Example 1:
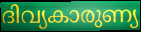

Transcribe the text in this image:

ദിവ്യകാരുണ്യ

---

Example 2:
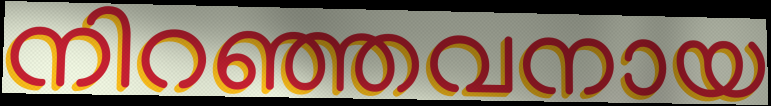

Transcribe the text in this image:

നിറഞ്ഞവനായ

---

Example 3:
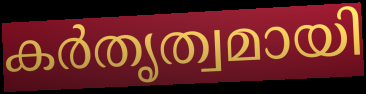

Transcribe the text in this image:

കർതൃത്വമായി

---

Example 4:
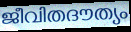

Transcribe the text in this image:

ജീവിതദൗത്യം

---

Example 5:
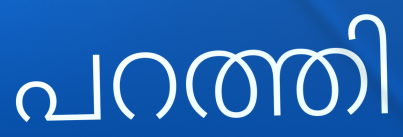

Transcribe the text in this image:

പറത്തി